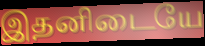
இதனிடையே